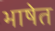
भाषेत